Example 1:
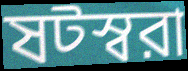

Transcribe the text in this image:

ষট্স্বরা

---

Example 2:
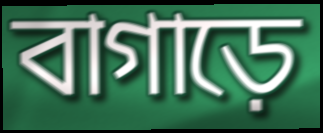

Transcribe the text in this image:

বাগাড়ে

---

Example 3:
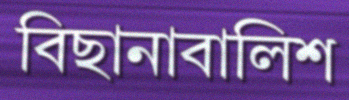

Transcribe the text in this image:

বিছানাবালিশ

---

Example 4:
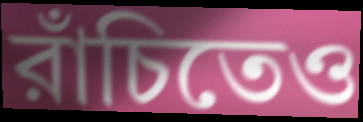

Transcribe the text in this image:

রাঁচিতেও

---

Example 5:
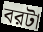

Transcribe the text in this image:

বরটা